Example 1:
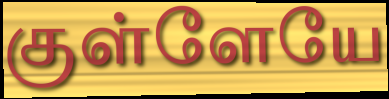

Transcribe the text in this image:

குள்ளேயே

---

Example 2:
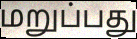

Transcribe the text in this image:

மறுப்பது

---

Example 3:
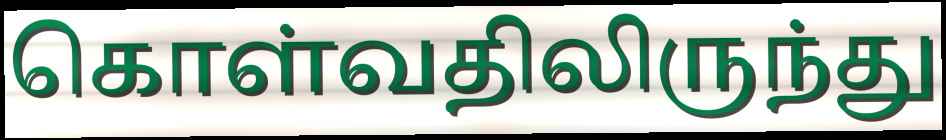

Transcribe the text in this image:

கொள்வதிலிருந்து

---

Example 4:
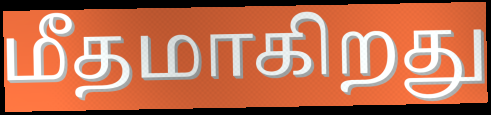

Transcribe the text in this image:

மீதமாகிறது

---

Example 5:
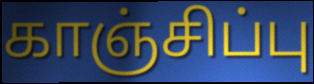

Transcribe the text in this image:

காஞ்சிப்பு